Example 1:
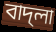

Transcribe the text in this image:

বাদ্‌লা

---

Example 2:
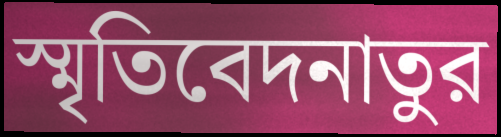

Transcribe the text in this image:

স্মৃতিবেদনাতুর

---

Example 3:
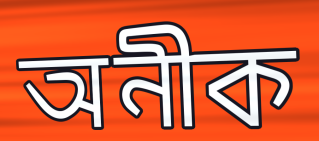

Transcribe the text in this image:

অনীক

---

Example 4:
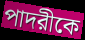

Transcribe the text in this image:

পাদরীকে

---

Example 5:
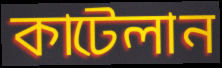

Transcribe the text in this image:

কাটেলান